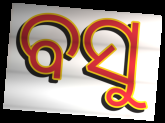
ବସୁ